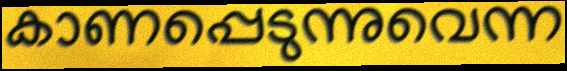
കാണപ്പെടുന്നുവെന്ന